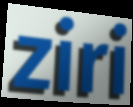
ziri